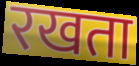
रखता